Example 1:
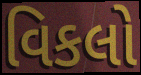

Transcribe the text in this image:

વિકલો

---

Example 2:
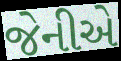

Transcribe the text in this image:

જેનીએ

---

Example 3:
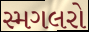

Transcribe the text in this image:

સ્મગલરો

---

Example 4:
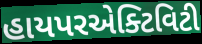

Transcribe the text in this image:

હાયપરએક્ટિવિટી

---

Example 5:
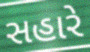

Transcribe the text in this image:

સહારે